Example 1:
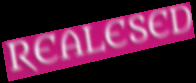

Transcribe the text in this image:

REALESED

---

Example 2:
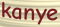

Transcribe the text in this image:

kanye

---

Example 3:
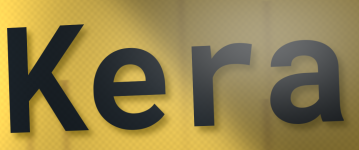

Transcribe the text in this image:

Kera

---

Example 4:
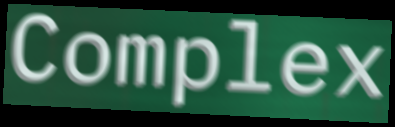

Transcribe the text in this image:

Complex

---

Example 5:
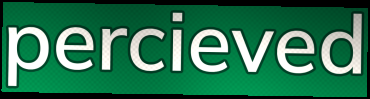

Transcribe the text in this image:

percieved